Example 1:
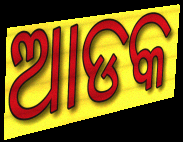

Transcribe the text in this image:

ଆଡକ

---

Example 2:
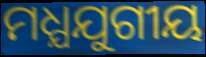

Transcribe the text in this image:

ମଧ୍ଯଯୁଗୀୟ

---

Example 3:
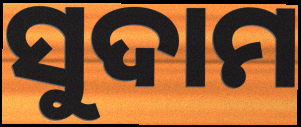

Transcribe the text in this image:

ସୁଦାମ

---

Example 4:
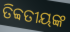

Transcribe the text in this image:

ତିବ୍ବତୀୟଙ୍କ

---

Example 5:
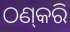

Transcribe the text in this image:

ଠଣ୍‌କରି